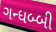
ગન્ધબ્બી